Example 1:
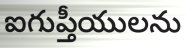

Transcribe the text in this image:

ఐగుప్తీయులను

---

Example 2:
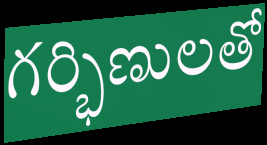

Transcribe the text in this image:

గర్భిణులతో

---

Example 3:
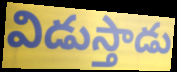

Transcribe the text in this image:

విడుస్తాడు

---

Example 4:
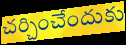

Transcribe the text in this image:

చర్చించేందుకు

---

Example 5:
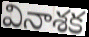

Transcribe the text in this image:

వినాశక